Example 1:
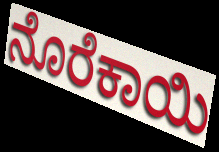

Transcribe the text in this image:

ನೊರೆಕಾಯಿ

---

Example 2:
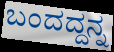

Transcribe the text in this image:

ಬಂದದ್ದನ್ನ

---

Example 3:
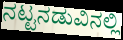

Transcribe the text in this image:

ನಟ್ಟನಡುವಿನಲ್ಲಿ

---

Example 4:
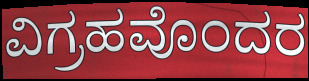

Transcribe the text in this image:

ವಿಗ್ರಹವೊಂದರ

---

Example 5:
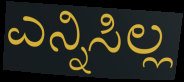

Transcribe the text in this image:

ಎನ್ನಿಸಿಲ್ಲ